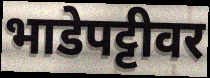
भाडेपट्टीवर